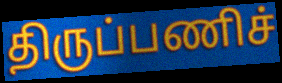
திருப்பணிச்